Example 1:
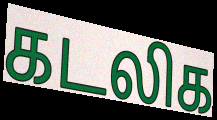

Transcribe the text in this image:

கடலிக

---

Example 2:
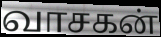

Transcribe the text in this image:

வாசகன்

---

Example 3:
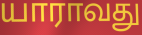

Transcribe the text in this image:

யாராவது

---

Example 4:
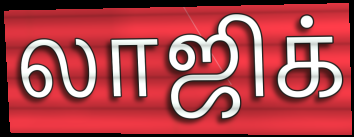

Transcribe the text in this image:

லாஜிக்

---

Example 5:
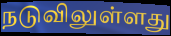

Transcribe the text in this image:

நடுவிலுள்ளது